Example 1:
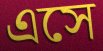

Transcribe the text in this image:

এসে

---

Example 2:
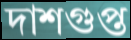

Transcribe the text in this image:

দাশগুপ্ত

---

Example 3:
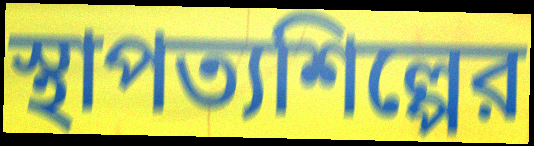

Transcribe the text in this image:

স্থাপত্যশিল্পের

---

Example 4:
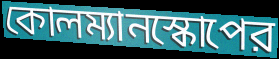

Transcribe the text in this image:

কোলম্যানস্কোপের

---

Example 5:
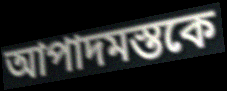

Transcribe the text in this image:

আপাদমস্তকে